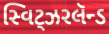
સ્વિટ્ઝરલૅન્ડ